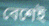
বেশেই